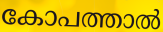
കോപത്താൽ